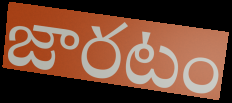
జారటం